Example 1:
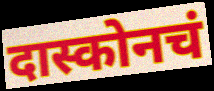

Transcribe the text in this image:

दास्कोनचं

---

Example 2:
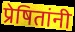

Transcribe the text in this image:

प्रेषितांनी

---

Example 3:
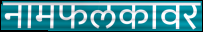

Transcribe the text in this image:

नामफलकावर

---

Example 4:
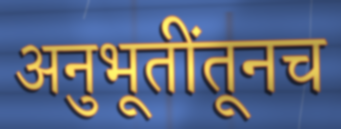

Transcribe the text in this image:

अनुभूतींतूनच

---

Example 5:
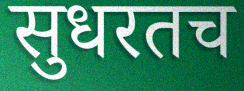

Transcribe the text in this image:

सुधरतच